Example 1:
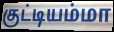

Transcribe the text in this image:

குட்டியம்மா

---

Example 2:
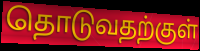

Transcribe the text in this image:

தொடுவதற்குள்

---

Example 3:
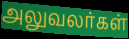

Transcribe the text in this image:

அலுவலர்கள்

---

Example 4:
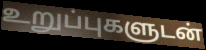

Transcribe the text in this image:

உறுப்புகளுடன்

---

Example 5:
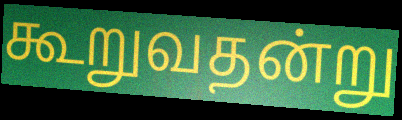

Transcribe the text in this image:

கூறுவதன்று